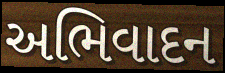
અભિવાદન